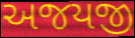
અજયજી